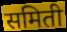
समिती